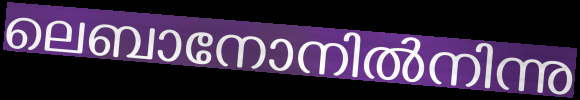
ലെബാനോനിൽനിന്നു